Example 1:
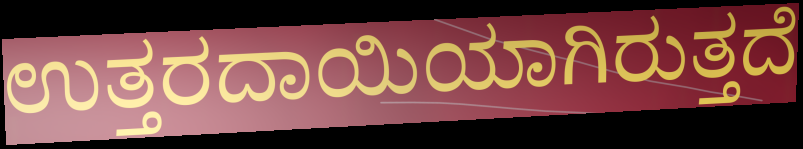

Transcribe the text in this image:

ಉತ್ತರದಾಯಿಯಾಗಿರುತ್ತದೆ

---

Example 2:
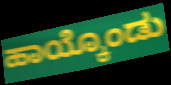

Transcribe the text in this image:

ಹಾಯ್ಕೊಂಡು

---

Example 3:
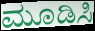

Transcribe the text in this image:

ಮೂಡಿಸಿ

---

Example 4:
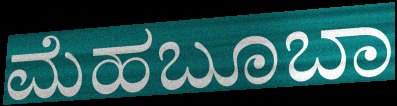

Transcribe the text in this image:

ಮೆಹಬೂಬಾ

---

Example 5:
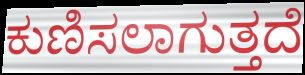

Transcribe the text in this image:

ಕುಣಿಸಲಾಗುತ್ತದೆ